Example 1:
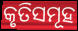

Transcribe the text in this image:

କୃତିସମୂହ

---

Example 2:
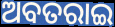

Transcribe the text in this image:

ଅବତରାଇ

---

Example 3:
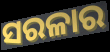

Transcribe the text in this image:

ସରଳାର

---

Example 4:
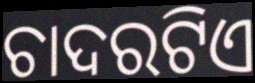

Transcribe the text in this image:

ଚାଦରଟିଏ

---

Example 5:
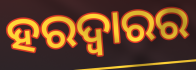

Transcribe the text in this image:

ହରଦ୍ୱାରର